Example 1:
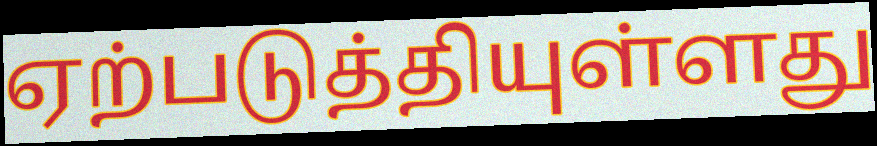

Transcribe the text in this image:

ஏற்படுத்தியுள்ளது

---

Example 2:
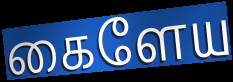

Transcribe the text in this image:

கைளேய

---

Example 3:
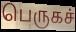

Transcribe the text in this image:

பெருகச்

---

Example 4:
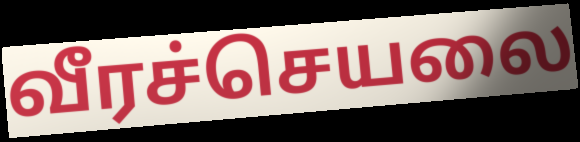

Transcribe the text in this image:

வீரச்செயலை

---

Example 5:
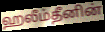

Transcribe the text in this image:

ஹலீம்தீனின்